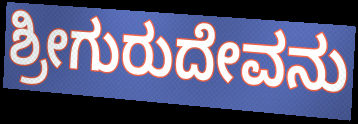
ಶ್ರೀಗುರುದೇವನು